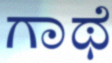
ಗಾಥೆ